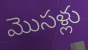
మొసళ్లు